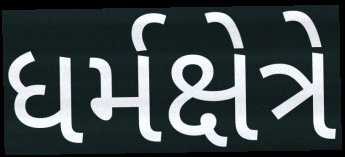
ધર્મક્ષેત્રે